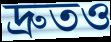
দ্রুতও